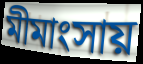
মীমাংসায়